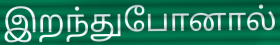
இறந்துபோனால்